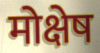
मोक्षेष